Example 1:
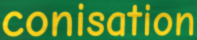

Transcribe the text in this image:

conisation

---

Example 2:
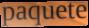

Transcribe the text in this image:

paquete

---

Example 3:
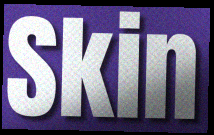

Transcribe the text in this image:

Skin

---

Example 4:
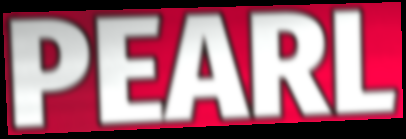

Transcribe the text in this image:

PEARL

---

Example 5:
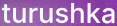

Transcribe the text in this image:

turushka